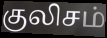
குலிசம்